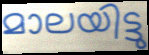
മാലയിട്ടു